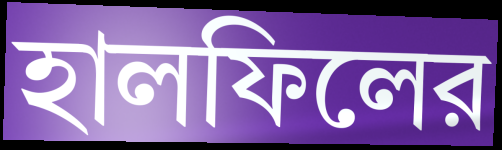
হালফিলের